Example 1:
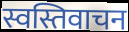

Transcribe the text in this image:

स्वस्तिवाचन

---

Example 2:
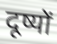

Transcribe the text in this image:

दूष्यों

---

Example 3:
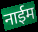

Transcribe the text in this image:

नाईम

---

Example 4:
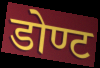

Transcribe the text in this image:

डोण्ट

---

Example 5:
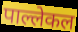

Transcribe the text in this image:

पाल्लेकल